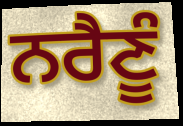
ਨਰੈਣੂੰ